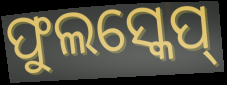
ଫୁଲସ୍କେପ୍